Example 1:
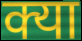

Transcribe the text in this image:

क्‍या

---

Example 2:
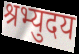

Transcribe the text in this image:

श्रभ्युदय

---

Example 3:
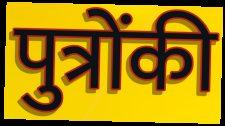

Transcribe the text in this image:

पुत्रोंकी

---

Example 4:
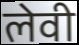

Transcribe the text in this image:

लेवी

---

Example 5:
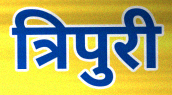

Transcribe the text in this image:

त्रिपुरी